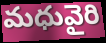
మధువైరి